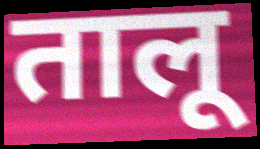
तालू